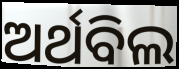
ଅର୍ଥବିଲ